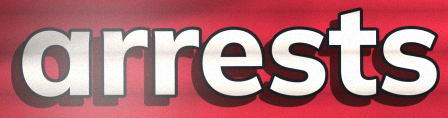
arrests